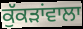
ਕੁੱਕੜਾਂਵਾਲਾ